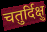
चतुर्दिक्षु